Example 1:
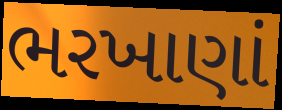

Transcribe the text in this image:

ભરખાણાં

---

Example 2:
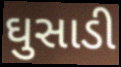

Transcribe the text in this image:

ઘુસાડી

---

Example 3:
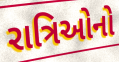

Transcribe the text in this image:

રાત્રિઓનો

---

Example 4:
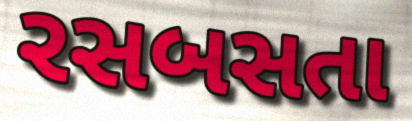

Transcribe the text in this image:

રસબસતા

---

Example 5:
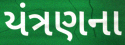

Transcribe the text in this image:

યંત્રણના